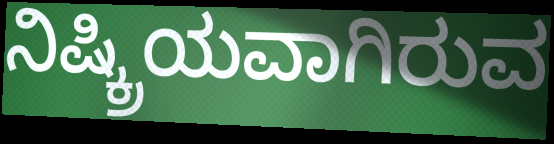
ನಿಷ್ಕ್ರಿಯವಾಗಿರುವ